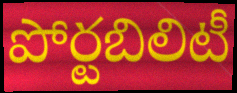
పోర్టబిలిటీ